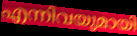
എന്നിവയുമായി